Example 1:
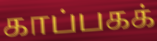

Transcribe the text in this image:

காப்பகக்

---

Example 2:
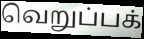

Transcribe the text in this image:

வெறுப்பக்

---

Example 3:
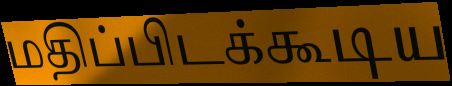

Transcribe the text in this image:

மதிப்பிடக்கூடிய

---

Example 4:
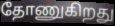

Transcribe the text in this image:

தோணுகிறது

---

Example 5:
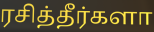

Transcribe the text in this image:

ரசித்தீர்களா